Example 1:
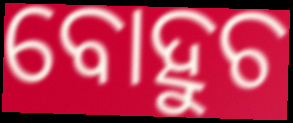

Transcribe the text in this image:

ବୋହୁଚ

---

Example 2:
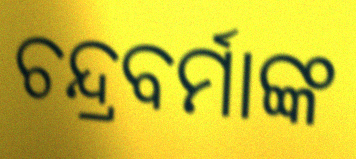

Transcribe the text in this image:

ଚନ୍ଦ୍ରବର୍ମାଙ୍କ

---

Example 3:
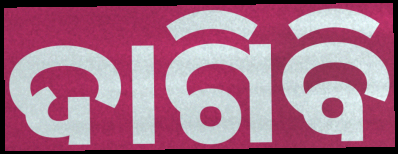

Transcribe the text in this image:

ଦାଗିବି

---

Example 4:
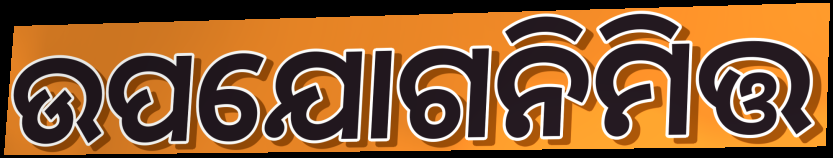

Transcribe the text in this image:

ଉପଯୋଗନିମିତ୍ତ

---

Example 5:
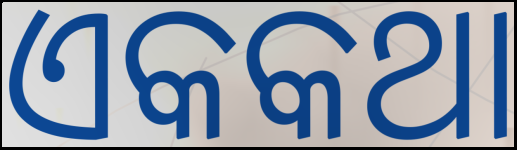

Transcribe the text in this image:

ଏକକଥା